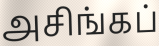
அசிங்கப்